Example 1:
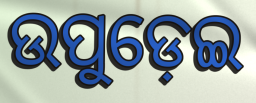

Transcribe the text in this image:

ଉପୁଡ଼େଇ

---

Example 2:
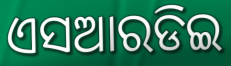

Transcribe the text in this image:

ଏସଆରଡିଇ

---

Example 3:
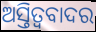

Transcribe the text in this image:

ଅସ୍ତିତ୍ବବାଦର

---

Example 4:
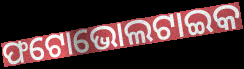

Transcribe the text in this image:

ଫଟୋଭୋଲଟାଇକ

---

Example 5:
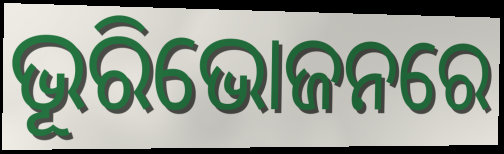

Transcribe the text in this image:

ଭୂରିଭୋଜନରେ